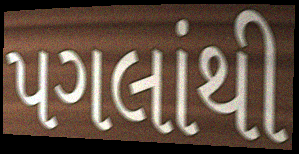
પગલાંથી